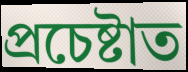
প্ৰচেষ্টাত